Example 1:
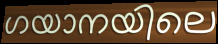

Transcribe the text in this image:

ഗയാനയിലെ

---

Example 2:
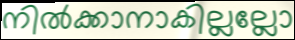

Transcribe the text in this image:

നിൽക്കാനാകില്ലല്ലോ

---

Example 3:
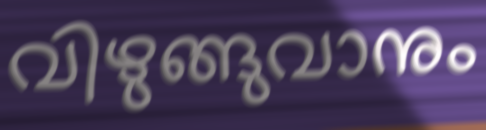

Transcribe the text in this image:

വിഴുങ്ങുവാനും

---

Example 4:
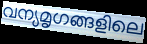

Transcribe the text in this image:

വന്യമൃഗങ്ങളിലെ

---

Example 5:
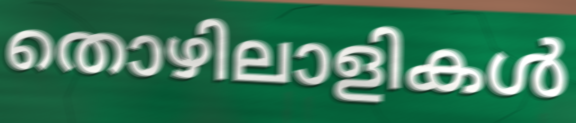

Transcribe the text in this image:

തൊഴിലാളികൾ